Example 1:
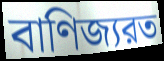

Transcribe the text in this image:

বাণিজ্যরত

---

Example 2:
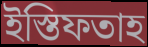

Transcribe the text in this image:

ইস্তিফতাহ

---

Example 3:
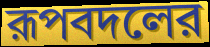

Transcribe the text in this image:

রূপবদলের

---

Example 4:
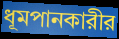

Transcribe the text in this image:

ধূমপানকারীর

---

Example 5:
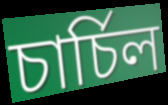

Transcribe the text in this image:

চার্চিল